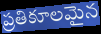
ప్రతికూలమైన